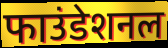
फाउंडेशनल